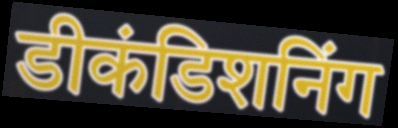
डीकंडिशनिंग